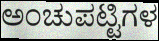
ಅಂಚುಪಟ್ಟಿಗಳ